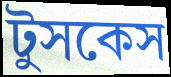
টুসকেস